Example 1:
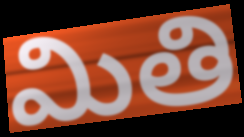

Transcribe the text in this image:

మితి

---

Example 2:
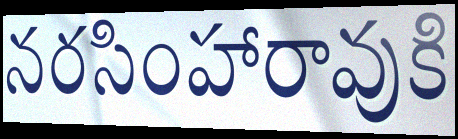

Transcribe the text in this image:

నరసింహారావుకి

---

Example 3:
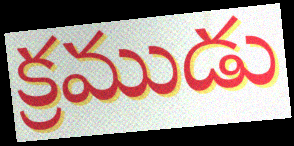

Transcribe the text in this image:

క్రముడు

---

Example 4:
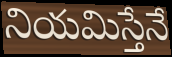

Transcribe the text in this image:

నియమిస్తేనే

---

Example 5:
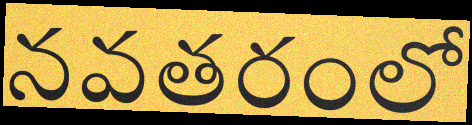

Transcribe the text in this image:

నవతరంలో